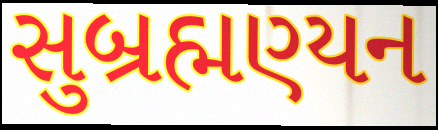
સુબ્રહ્મણ્યન